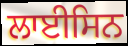
ਲਾਈਸਿਨ